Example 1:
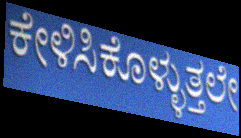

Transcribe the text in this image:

ಕೇಳಿಸಿಕೊಳ್ಳುತ್ತಲೇ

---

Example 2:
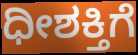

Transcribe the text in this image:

ಧೀಶಕ್ತಿಗೆ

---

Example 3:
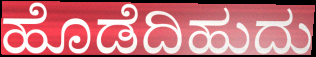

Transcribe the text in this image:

ಹೊಡೆದಿಹುದು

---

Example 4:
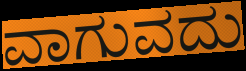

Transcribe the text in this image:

ವಾಗುವದು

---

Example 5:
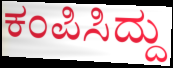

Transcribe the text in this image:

ಕಂಪಿಸಿದ್ದು